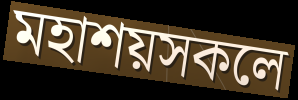
মহাশয়সকলে